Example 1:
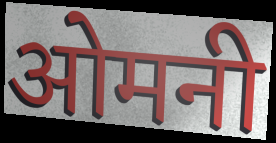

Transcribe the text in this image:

ओमनी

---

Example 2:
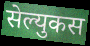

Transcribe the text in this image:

सेल्युकस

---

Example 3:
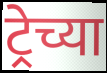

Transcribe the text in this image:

ट्रेच्या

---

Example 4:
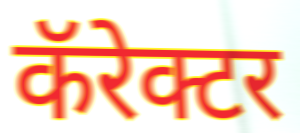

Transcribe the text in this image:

कॅरेक्टर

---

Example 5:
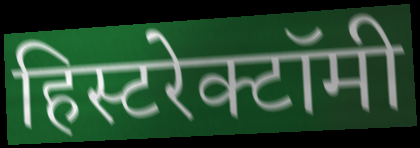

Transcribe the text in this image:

हिस्टरेक्टॉमी